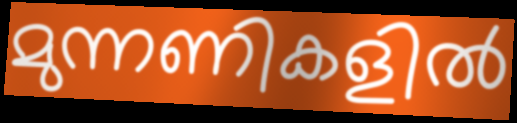
മുന്നണികളിൽ